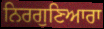
ਨਿਰਗੁਣਿਆਰਾ